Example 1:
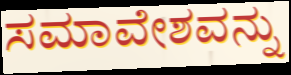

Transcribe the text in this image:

ಸಮಾವೇಶವನ್ನು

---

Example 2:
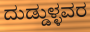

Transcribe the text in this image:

ದುಡ್ಡುಳ್ಳವರ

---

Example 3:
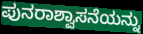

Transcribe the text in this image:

ಪುನರಾಶ್ವಾಸನೆಯನ್ನು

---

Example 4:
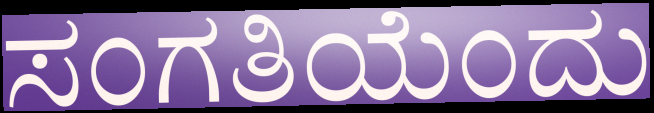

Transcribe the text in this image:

ಸಂಗತಿಯೆಂದು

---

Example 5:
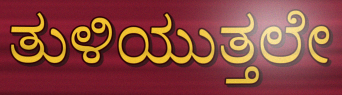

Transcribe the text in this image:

ತುಳಿಯುತ್ತಲೇ